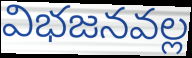
విభజనవల్ల